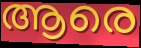
ആരെ